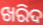
ଖରିଦ